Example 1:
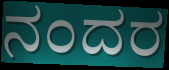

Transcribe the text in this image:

ನಂದರ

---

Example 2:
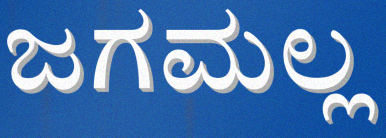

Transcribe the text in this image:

ಜಗಮಲ್ಲ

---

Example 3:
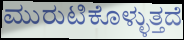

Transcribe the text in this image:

ಮುರುಟಿಕೊಳ್ಳುತ್ತದೆ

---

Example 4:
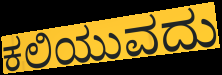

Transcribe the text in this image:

ಕಲಿಯುವದು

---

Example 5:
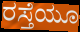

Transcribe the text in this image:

ರಸ್ತೆಯೂ